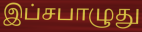
இப்சபாழுது